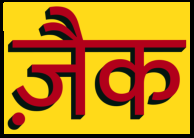
ज़ैक